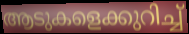
ആടുകളെക്കുറിച്ച്